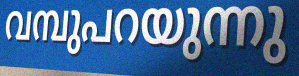
വമ്പുപറയുന്നു